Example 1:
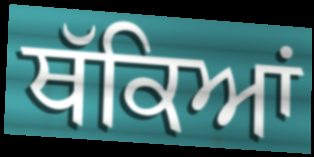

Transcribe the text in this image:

ਥੱਕਿਆਂ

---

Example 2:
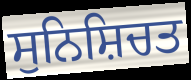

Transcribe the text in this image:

ਸੁਨਿਸ਼ਿਚਤ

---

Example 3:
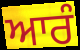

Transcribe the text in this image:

ਆਰੰ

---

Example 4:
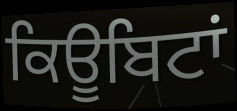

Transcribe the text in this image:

ਕਿਊਬਿਟਾਂ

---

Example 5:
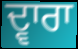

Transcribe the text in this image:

ਦ੍ਵਾਰਾ